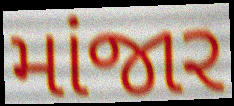
માંજાર